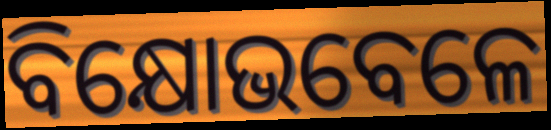
ବିକ୍ଷୋଭବେଳେ